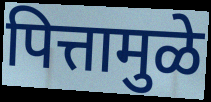
पित्तामुळे